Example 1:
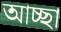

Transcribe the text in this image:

আচ্ছা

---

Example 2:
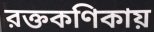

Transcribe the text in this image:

রক্তকণিকায়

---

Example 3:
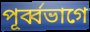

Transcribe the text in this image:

পূর্ব্বভাগে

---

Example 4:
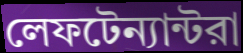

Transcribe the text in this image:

লেফটেন্যান্টরা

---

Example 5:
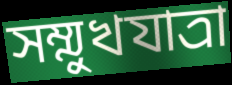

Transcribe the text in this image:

সম্মুখযাত্রা